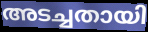
അടച്ചതായി